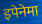
इपेनेमा